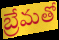
బ్రేమతో